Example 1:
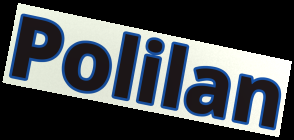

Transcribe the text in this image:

Polilan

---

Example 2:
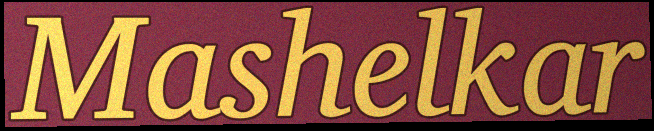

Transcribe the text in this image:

Mashelkar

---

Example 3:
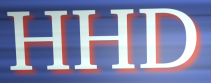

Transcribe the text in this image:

HHD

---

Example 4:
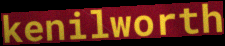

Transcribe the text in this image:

kenilworth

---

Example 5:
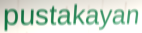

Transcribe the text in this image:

pustakayan